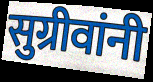
सुग्रीवांनी